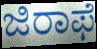
ಜಿರಾಫೆ